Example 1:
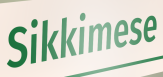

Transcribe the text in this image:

Sikkimese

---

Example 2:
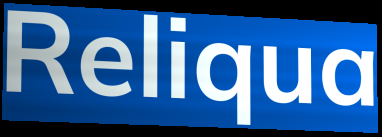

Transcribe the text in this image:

Reliqua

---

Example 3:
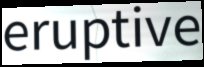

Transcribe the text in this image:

eruptive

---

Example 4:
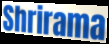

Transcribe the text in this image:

Shrirama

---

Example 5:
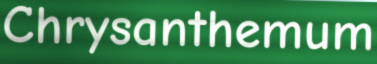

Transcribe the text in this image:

Chrysanthemum